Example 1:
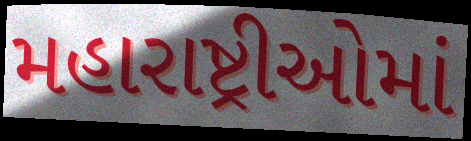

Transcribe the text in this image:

મહારાષ્ટ્રીઓમાં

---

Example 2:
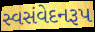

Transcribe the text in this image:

સ્વસંવેદનરૂપ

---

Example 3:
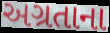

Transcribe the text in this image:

અગ્રતાના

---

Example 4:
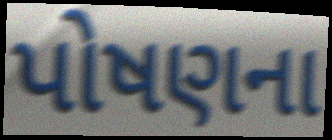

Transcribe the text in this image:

પોષણના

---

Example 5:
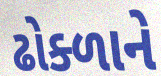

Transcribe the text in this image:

ઢોક્ળાને